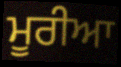
ਮੂਰੀਆ